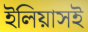
ইলিয়াসই